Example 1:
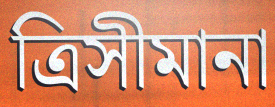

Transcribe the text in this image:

ত্রিসীমানা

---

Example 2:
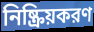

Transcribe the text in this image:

নিষ্ক্রিয়করণ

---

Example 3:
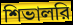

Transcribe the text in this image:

শিভালরি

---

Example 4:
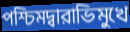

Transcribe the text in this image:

পশ্চিমদ্বারাভিমুখে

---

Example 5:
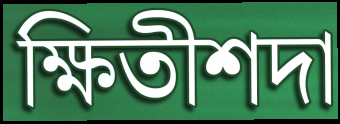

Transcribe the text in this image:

ক্ষিতীশদা